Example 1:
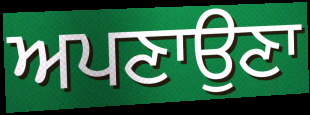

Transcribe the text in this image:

ਅਪਣਾਉਣਾ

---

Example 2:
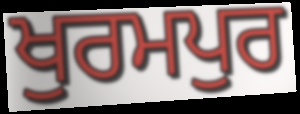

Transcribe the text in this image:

ਖੁਰਮਪੁਰ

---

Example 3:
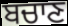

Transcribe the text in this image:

ਬਚਾਣ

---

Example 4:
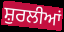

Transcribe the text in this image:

ਸ਼ੁਰਲੀਆਂ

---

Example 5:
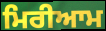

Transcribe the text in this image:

ਮਿਰੀਆਮ